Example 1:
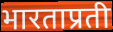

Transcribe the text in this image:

भारताप्रती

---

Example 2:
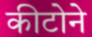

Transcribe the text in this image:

कीटोने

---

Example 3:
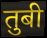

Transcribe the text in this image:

तुबी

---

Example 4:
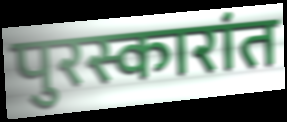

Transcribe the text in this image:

पुरस्कारांत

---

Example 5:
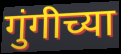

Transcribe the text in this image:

गुंगीच्या